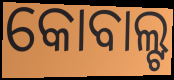
କୋବାଲ୍ଟ